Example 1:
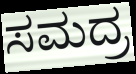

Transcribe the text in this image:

ಸಮದ್ರ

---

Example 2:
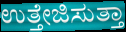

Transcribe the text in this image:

ಉತ್ತೇಜಿಸುತ್ತಾ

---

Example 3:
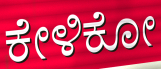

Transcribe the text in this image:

ಕೇಳಿಕೋ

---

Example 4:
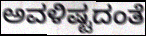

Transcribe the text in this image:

ಅವಳಿಷ್ಟದಂತೆ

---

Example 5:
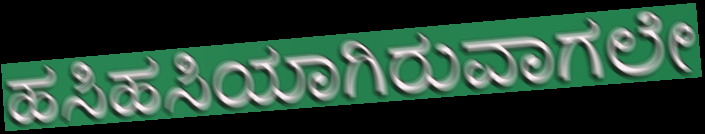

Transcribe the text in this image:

ಹಸಿಹಸಿಯಾಗಿರುವಾಗಲೇ